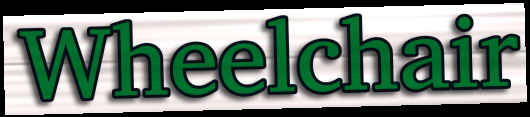
Wheelchair